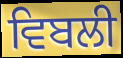
ਵਿਬਲੀ